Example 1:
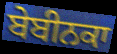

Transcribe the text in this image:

ਬੇਬੀਨਕਾ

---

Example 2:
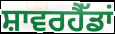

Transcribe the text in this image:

ਸ਼ਾਵਰਹੈੱਡਾਂ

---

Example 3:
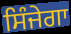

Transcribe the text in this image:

ਸਿੰਜੇਗਾ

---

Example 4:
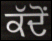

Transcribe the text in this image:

ਕੱਦੋਂ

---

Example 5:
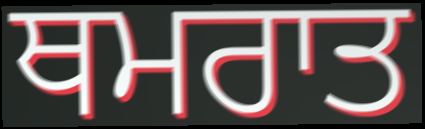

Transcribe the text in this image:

ਥਮਰਾਤ